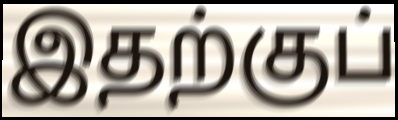
இதற்குப்